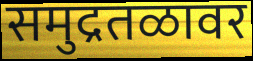
समुद्रतळावर